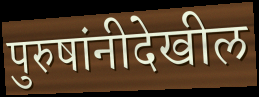
पुरुषांनीदेखील